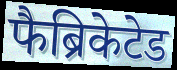
फैब्रिकेटेड